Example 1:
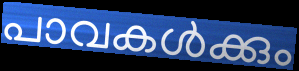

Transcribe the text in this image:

പാവകൾക്കും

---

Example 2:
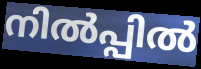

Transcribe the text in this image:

നിൽപ്പിൽ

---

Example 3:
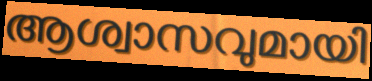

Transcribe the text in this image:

ആശ്വാസവുമായി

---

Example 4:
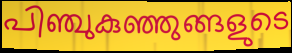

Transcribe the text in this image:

പിഞ്ചുകുഞ്ഞുങ്ങളുടെ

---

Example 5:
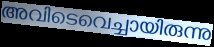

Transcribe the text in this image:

അവിടെവെച്ചായിരുന്നു